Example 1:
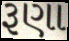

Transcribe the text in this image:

રૂણા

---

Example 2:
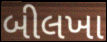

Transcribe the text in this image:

બીલખા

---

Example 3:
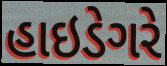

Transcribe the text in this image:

હાઇડેગરે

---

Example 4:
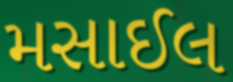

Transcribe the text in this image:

મસાઈલ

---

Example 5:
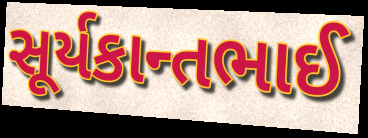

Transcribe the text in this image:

સૂર્યકાન્તભાઈ